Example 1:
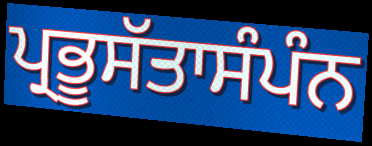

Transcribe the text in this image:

ਪ੍ਰਭੂਸੱਤਾਸੰਪੰਨ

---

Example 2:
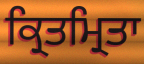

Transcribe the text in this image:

ਕ੍ਰਿਤਮ੍ਰਿਤਾ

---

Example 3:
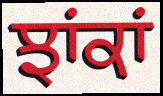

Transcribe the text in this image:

ਝਾਂਕਾਂ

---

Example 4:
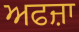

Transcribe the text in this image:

ਅਫਜ਼ਾ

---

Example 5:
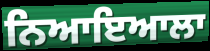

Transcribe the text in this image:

ਨਿਆਇਆਲਾ